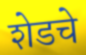
शेडचे